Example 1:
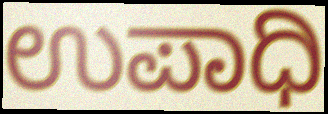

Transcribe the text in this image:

ಉಪಾಧಿ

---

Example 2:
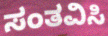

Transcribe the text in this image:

ಸಂತವಿಸಿ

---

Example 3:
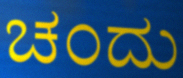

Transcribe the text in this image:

ಚಂದು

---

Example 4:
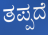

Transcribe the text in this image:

ತಪ್ಪದೆ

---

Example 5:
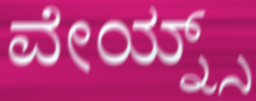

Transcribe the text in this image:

ವೇಯ್ನ್ಸ್